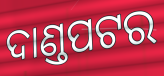
ଦାଣ୍ଡପଟର